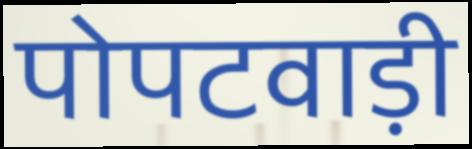
पोपटवाड़ी